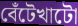
বেঁটেখাটো